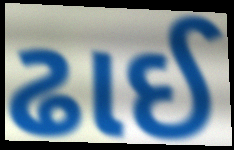
ઢાઈ